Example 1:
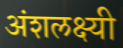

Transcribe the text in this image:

अंशलक्ष्यी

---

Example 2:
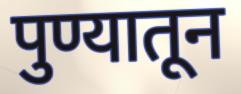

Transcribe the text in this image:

पुण्यातून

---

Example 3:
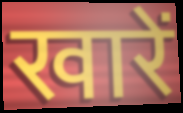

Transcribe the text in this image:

खारें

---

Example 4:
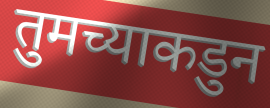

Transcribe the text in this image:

तुमच्याकडुन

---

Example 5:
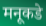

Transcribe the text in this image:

मनूकडे